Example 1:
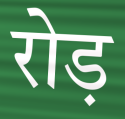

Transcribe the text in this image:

रोड़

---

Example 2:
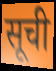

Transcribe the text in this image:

सूची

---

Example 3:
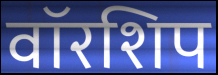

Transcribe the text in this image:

वॉरशिप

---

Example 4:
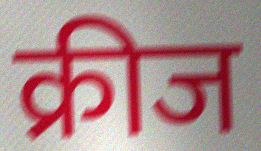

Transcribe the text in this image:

क्रीज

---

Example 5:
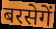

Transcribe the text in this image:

बरसेगें